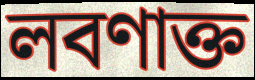
লবণাক্ত